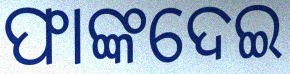
ଫାଙ୍କଦେଇ